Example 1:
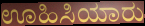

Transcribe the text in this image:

ಊಹಿಸಿಯಾರು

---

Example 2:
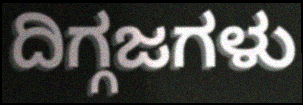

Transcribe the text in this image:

ದಿಗ್ಗಜಗಳು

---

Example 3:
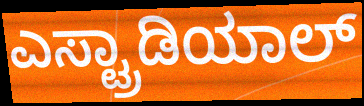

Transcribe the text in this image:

ಎಸ್ಟ್ರಾಡಿಯಾಲ್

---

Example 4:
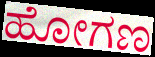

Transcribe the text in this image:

ಹೋಗಣ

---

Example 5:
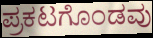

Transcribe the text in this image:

ಪ್ರಕಟಗೊಂಡವು